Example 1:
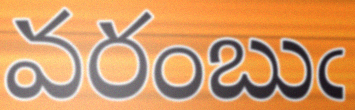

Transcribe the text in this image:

వరంబుఁ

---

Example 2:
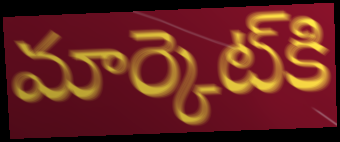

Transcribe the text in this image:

మార్కెట్‌కి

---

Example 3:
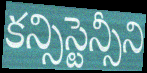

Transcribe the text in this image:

కన్సిస్టెన్సీని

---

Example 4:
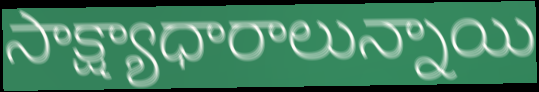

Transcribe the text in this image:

సాక్ష్యాధారాలున్నాయి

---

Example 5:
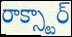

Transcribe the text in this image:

రాక్స్టార్